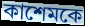
কাশেমকে